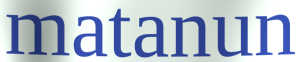
matanun